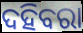
ଦହିବରା